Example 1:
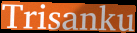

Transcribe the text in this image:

Trisanku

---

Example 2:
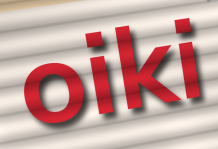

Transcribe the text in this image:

oiki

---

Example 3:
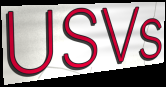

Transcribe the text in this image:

USVs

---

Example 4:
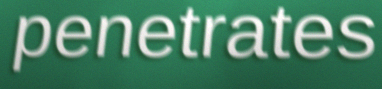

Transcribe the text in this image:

penetrates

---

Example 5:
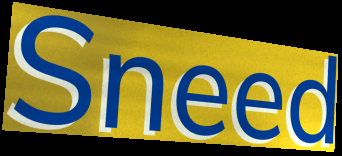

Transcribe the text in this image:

Sneed